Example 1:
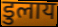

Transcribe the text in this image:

डुलाय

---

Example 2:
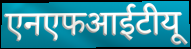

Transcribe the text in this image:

एनएफआईटीयू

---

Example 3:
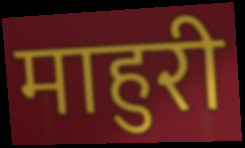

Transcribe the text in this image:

माहुरी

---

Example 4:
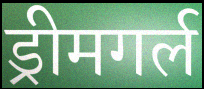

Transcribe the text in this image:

ड्रीमगर्ल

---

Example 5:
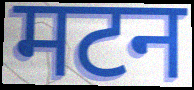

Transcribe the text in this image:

मटन